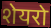
शेयरो